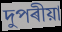
দুপৰীয়া